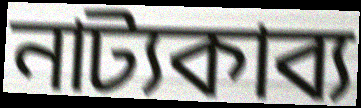
নাট্যকাব্য